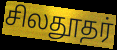
சிலதூதர்